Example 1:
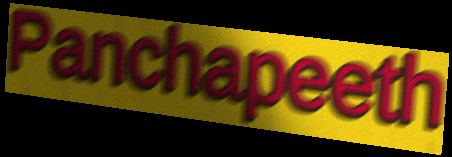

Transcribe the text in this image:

Panchapeeth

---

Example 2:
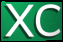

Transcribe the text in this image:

XC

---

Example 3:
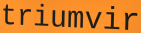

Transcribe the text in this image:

triumvir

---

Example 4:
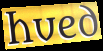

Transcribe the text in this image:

hued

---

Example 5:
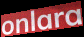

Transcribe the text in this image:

onlara